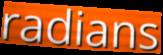
radians